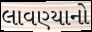
લાવણ્યાનો